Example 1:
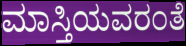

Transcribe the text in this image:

ಮಾಸ್ತಿಯವರಂತೆ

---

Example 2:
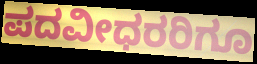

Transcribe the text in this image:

ಪದವೀಧರರಿಗೂ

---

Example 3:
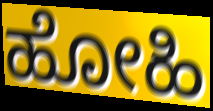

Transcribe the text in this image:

ಹೋಹಿ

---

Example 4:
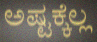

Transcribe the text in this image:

ಅಷ್ಟಕ್ಕೆಲ್ಲ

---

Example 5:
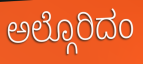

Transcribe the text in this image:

ಅಲ್ಗೊರಿದಂ